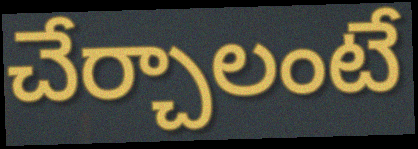
చేర్చాలంటే